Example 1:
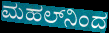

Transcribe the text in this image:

ಮಹಲ್‌ನಿಂದ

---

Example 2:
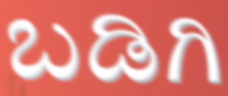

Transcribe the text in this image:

ಬಡಿಗಿ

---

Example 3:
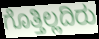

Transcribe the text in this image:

ಗೊತ್ತಿಲ್ಲದಿರು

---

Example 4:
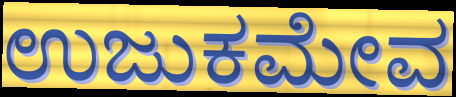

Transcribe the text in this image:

ಉಜುಕಮೇವ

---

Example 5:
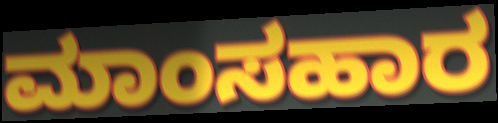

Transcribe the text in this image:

ಮಾಂಸಹಾರ